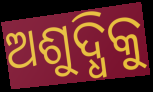
ଅଶୁଦ୍ଧିକୁ